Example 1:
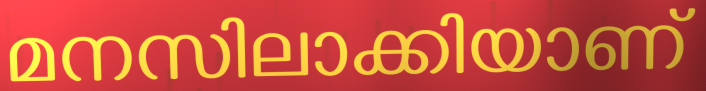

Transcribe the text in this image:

മനസിലാക്കിയാണ്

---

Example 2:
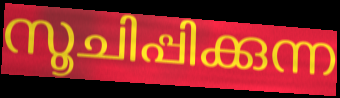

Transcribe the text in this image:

സൂചിപ്പിക്കുന്ന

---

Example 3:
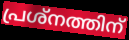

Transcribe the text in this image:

പ്രശ്നത്തിന്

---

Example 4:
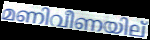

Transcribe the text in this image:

മണിവീണയില്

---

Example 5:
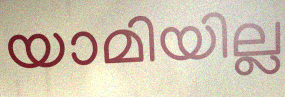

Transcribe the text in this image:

യാമിയില്ല